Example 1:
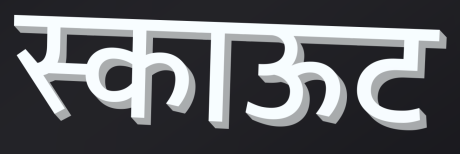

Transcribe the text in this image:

स्काऊट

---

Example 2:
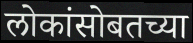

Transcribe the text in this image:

लोकांसोबतच्या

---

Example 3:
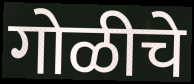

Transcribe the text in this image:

गोळीचे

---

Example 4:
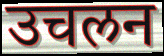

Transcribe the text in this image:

उचलन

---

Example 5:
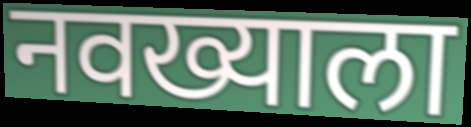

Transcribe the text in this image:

नवख्याला